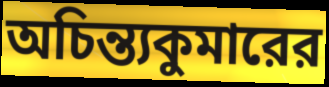
অচিন্ত্যকুমারের